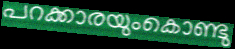
പറക്കാരയുംകൊണ്ടു